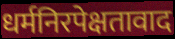
धर्मनिरपेक्षतावाद